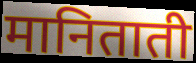
मानिताती